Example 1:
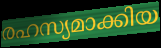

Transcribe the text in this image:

രഹസ്യമാക്കിയ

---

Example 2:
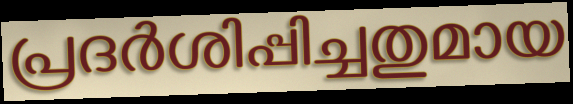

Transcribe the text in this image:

പ്രദർശിപ്പിച്ചതുമായ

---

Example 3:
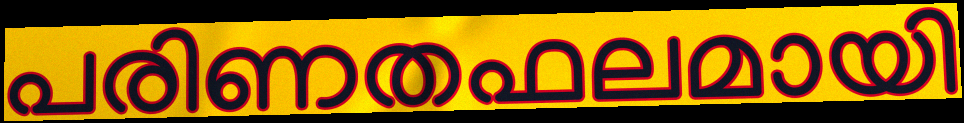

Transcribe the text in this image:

പരിണതഫലമായി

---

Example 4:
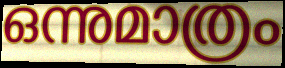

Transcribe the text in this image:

ഒന്നുമാത്രം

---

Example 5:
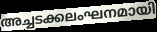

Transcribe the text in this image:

അച്ചടക്കലംഘനമായി